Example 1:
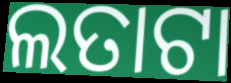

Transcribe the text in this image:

ଲତାଟା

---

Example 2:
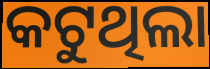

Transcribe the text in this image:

କଟୁଥିଲା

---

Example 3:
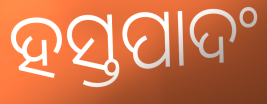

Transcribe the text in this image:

ହସ୍ତପାଦଂ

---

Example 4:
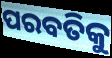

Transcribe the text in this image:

ପରବତିକୁ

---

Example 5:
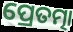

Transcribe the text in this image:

ପ୍ରେତତ୍ମା